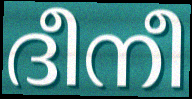
ദീനീ